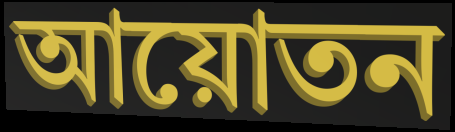
আয়োতন